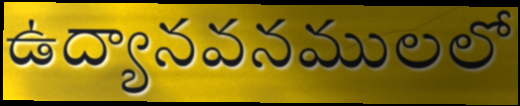
ఉద్యానవనములలో